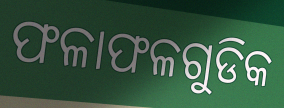
ଫଳାଫଳଗୁଡିକ